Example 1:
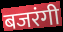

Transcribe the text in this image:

बजरंगी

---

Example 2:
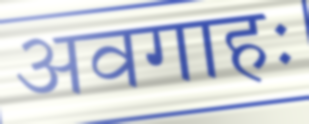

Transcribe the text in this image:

अवगाहः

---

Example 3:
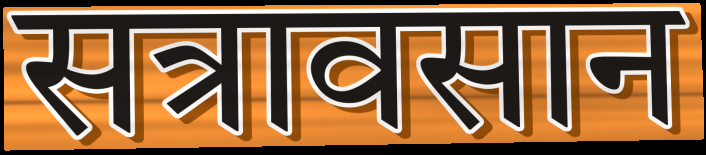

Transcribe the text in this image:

सत्रावसान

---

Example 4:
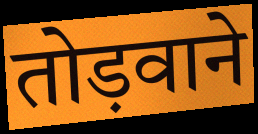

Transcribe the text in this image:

तोड़वाने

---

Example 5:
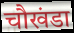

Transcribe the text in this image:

चौखंडा